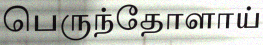
பெருந்தோளாய்